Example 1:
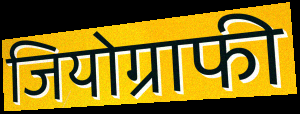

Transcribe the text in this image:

जियोग्राफी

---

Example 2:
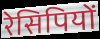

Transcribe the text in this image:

रेसिपियों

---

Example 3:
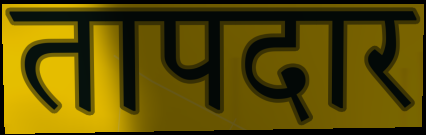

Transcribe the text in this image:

तापदार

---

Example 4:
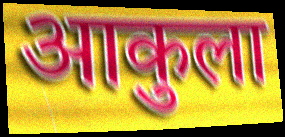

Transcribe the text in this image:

आकुला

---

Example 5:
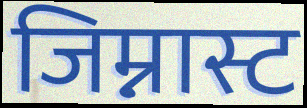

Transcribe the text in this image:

जिम्नास्ट